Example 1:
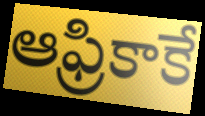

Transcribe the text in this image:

ఆఫ్రికాకే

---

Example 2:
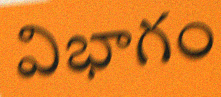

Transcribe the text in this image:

విభాగం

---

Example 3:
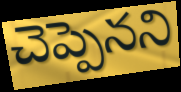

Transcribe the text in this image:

చెప్పెనని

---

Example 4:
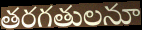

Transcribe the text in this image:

తరగతులనూ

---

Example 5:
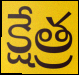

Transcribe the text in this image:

క్షేత్ర